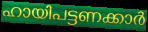
ഹായിപട്ടണക്കാർ